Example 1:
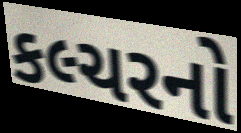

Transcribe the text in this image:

કલ્ચરનો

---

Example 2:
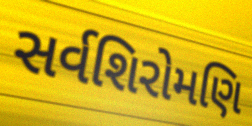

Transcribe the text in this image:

સર્વશિરોમણિ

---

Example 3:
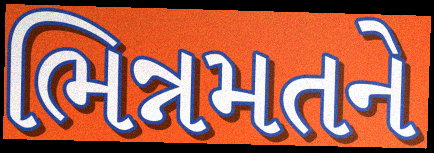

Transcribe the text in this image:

ભિન્નમતને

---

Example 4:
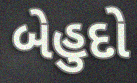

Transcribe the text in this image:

બેહુદો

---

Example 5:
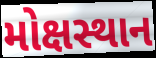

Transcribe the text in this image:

મોક્ષસ્થાન